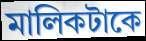
মালিকটাকে